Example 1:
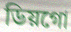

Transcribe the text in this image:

ডিয়গো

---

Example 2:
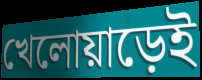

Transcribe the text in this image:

খেলোয়াড়েই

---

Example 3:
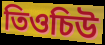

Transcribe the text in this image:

তিওচিউ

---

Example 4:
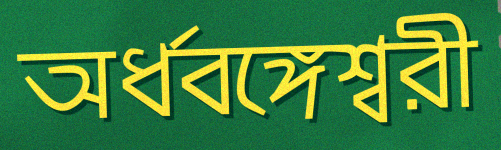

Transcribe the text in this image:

অর্ধবঙ্গেশ্বরী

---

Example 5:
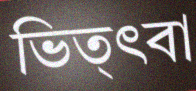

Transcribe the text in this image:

ভিত্ৎবা